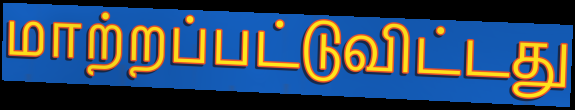
மாற்றப்பட்டுவிட்டது